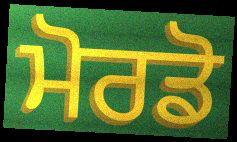
ਮੋਰਡੋ